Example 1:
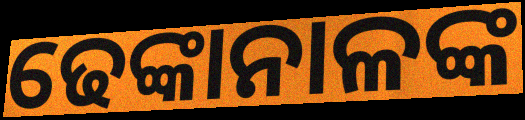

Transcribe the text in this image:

ଢେଙ୍କାନାଳଙ୍କ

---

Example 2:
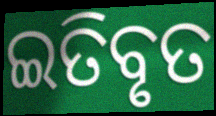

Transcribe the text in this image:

ଇତିବୃତ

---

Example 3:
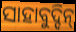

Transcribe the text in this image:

ସାହାବୁଦ୍ଦିନ୍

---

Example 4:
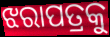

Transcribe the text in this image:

ଝରାପତ୍ରକୁ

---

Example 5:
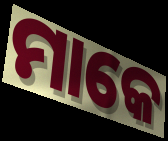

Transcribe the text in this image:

ମାକେ